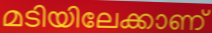
മടിയിലേക്കാണ്